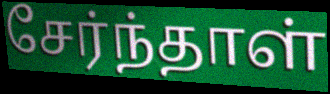
சேர்ந்தாள்